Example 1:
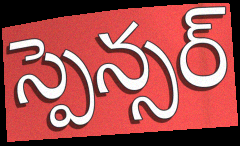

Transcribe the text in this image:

స్పెన్సర్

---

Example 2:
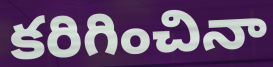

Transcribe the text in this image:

కరిగించినా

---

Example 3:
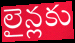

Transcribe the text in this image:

లైన్లకు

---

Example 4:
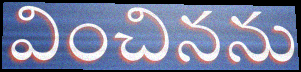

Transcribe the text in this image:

వించినను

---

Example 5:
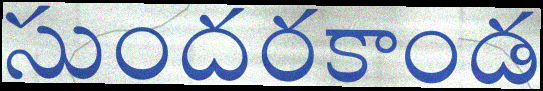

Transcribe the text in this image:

సుందరకాండ